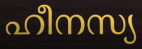
ഹീനസ്യ